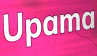
Upama